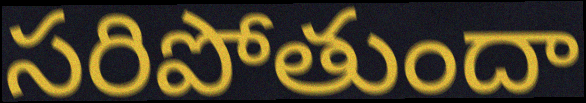
సరిపోతుందా